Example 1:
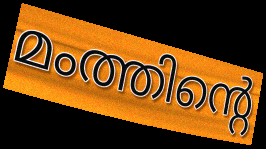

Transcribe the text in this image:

മംത്തിന്റെ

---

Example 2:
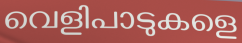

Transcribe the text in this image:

വെളിപാടുകളെ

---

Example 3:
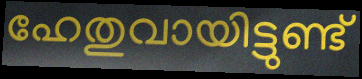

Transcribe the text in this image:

ഹേതുവായിട്ടുണ്ട്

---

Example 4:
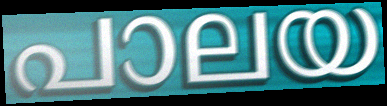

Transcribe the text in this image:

പാലയ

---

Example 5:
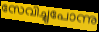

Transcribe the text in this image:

സേവിച്ചുപോന്നു